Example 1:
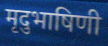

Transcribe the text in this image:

मृदुभाषिणी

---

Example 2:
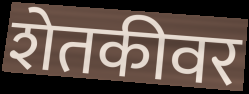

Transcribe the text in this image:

शेतकीवर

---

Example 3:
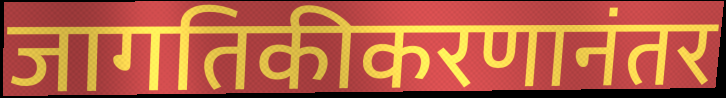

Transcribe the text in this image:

जागतिकीकरणानंतर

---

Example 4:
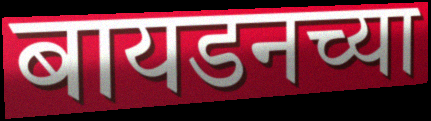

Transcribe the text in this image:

बायडनच्या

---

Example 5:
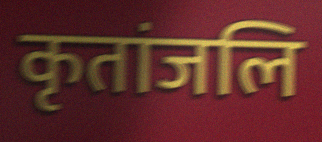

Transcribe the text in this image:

कृतांजलि